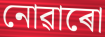
নোৱাৰো